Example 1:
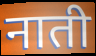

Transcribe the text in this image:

नाती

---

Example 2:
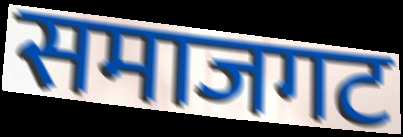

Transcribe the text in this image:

समाजगट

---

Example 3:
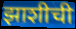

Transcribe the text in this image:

झाशीची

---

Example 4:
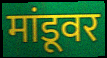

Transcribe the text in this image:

मांडूवर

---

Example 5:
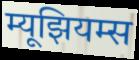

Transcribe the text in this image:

म्यूझियम्स